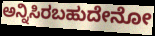
ಅನ್ನಿಸಿರಬಹುದೇನೋ